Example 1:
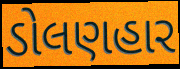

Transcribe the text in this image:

ડોલણહાર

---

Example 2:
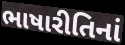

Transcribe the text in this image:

ભાષારીતિનાં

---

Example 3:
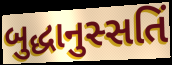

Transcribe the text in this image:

બુદ્ધાનુસ્સતિં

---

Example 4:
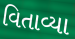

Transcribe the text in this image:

વિતાવ્યા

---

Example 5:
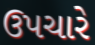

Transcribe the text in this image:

ઉપચારે